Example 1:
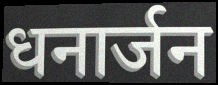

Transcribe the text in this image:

धनार्जन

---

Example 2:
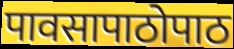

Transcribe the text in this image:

पावसापाठोपाठ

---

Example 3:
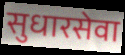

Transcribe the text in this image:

सुधारसेवा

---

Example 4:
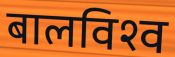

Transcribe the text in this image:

बालविश्व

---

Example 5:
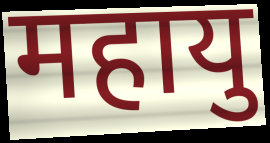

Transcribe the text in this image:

महायु